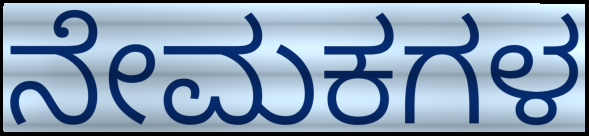
ನೇಮಕಗಳ